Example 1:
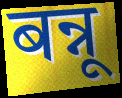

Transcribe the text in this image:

बन्नू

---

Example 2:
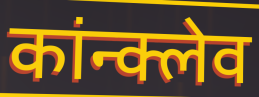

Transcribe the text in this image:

कांन्क्लेव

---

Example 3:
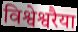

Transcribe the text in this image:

विश्वेश्वरैया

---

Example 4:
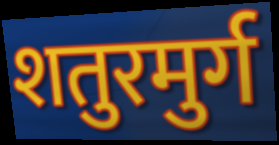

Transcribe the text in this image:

शतुरमुर्ग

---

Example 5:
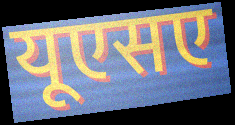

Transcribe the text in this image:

यूएसए